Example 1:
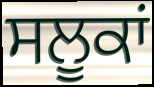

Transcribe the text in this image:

ਸਲੂਕਾਂ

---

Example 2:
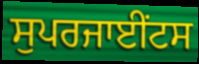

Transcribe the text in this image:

ਸੁਪਰਜਾਈਂਟਸ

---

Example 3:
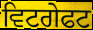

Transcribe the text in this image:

ਵਿਟਗੇਫਟ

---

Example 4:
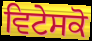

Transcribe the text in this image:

ਵਿਟੇਸਕੋ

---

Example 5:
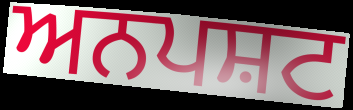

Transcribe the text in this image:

ਅਨਪਸ਼ਟ